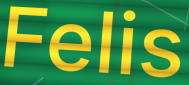
Felis